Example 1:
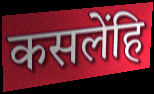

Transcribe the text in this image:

कसलेंहि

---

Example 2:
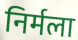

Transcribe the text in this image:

निर्मला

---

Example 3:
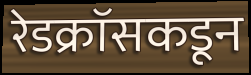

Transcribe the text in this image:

रेडक्रॉसकडून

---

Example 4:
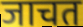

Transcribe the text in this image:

जाचत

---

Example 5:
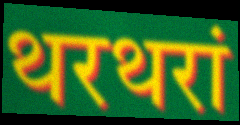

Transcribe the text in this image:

थरथरां